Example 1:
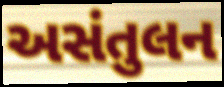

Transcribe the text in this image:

અસંતુલન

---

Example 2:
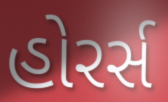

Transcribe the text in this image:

હોરર્સ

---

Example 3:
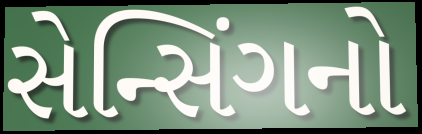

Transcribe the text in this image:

સેન્સિંગનો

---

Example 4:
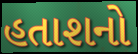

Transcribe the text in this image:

હતાશનો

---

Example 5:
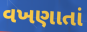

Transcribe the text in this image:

વખણાતાં